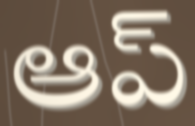
ఆప్